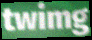
twimg